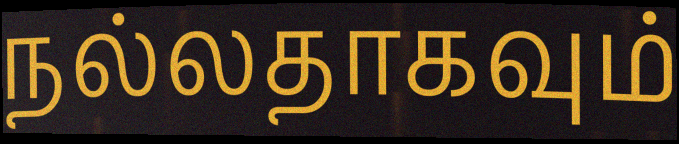
நல்லதாகவும்